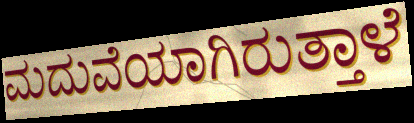
ಮದುವೆಯಾಗಿರುತ್ತಾಳೆ